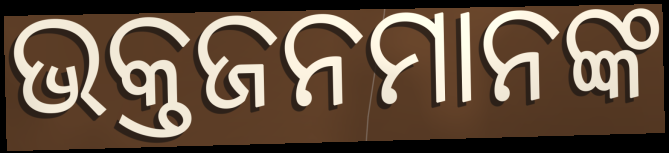
ଭକ୍ତଜନମାନଙ୍କ